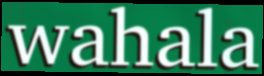
wahala